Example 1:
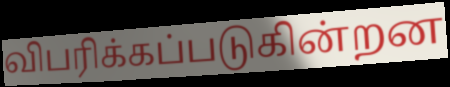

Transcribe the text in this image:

விபரிக்கப்படுகின்றன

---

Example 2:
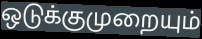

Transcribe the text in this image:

ஒடுக்குமுறையும்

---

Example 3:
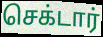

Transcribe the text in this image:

செக்டார்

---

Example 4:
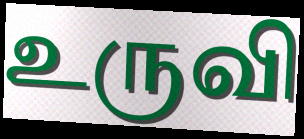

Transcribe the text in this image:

உருவி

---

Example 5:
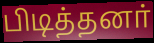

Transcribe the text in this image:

பிடித்தனர்